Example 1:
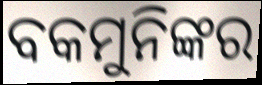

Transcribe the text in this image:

ବକମୁନିଙ୍କର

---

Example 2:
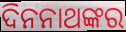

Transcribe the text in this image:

ଦିନନାଥଙ୍କର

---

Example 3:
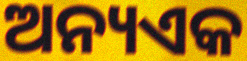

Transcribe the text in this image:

ଅନ୍ୟଏକ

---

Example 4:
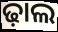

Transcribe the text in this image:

ଢ଼ାଲ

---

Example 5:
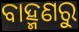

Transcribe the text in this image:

ବାହ୍ମଣରୁ